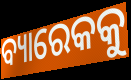
ବ୍ୟାରେକକୁ